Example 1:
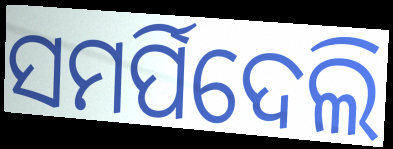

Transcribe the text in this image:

ସମର୍ପିଦେଲି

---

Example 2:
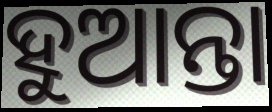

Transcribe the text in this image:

ହୁଆନ୍ତା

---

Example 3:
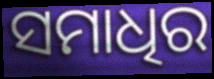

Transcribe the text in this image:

ସମାଧିର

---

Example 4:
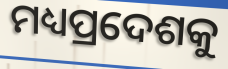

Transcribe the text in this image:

ମଧ୍ୟପ୍ରଦେଶକୁ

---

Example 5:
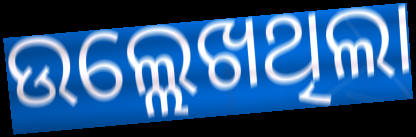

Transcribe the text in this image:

ଉଲ୍ଲେଖଥିଲା